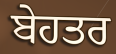
ਬੇਹਤਰ